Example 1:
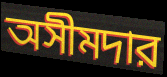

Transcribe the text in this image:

অসীমদার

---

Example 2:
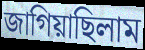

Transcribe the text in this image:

জাগিয়াছিলাম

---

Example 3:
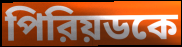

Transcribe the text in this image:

পিরিয়ডকে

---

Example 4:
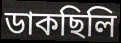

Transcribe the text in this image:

ডাকছিলি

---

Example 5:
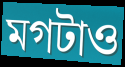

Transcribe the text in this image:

মগটাও